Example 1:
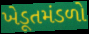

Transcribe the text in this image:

ખેડૂતમંડળો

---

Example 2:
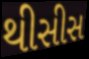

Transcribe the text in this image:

થીસીસ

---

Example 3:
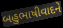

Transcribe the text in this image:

બહુભાષીવાદને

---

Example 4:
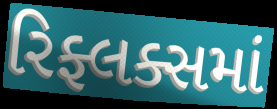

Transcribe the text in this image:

રિફ્લક્સમાં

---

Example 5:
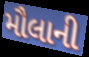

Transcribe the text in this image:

મૌલાની